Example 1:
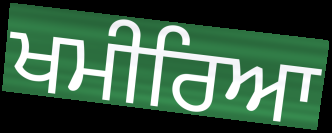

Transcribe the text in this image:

ਖਮੀਰਿਆ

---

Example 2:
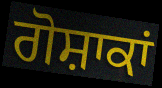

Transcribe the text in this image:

ਗੋਸ਼ਾਕਾਂ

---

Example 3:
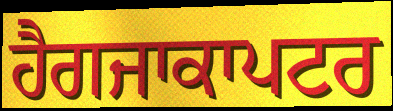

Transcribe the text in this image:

ਹੈਗਜਾਕਾਪਟਰ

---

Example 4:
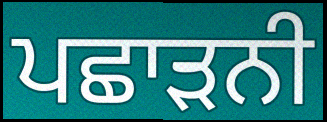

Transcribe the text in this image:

ਪਛਾੜਨੀ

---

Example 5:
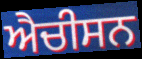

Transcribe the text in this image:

ਐਚੀਸਨ